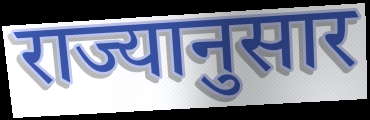
राज्यानुसार